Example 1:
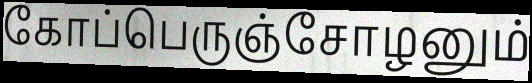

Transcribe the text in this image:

கோப்பெருஞ்சோழனும்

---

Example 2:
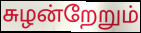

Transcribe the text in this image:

சுழன்றேறும்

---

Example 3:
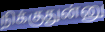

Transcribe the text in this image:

நிக்குதுன்னு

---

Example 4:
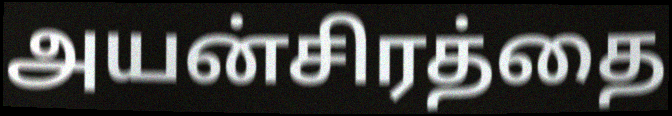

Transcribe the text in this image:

அயன்சிரத்தை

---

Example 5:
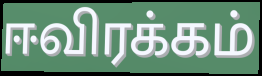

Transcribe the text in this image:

ஈவிரக்கம்